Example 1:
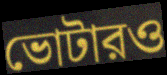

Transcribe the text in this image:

ভোটারও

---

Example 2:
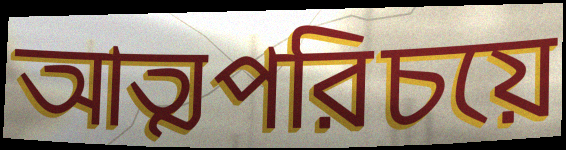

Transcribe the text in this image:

আত্মপরিচয়ে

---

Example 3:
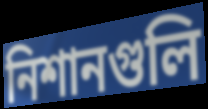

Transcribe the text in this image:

নিশানগুলি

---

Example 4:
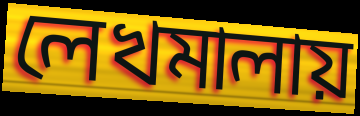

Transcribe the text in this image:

লেখমালায়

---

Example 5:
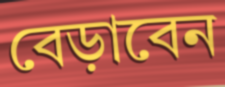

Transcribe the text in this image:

বেড়াবেন